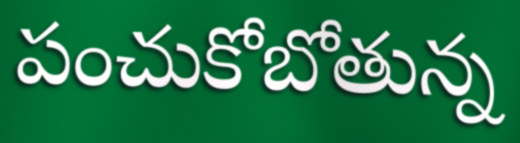
పంచుకోబోతున్న